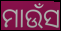
ମାଉଁସ